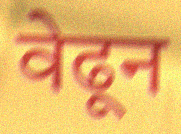
वेढून